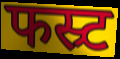
फस्र्ट